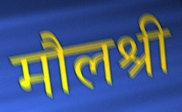
मौलश्री